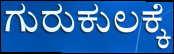
ಗುರುಕುಲಕ್ಕೆ